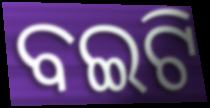
ବଇଟି